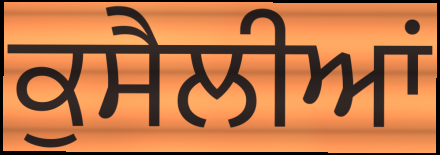
ਕੁਸੈਲੀਆਂ